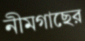
নীমগাছের